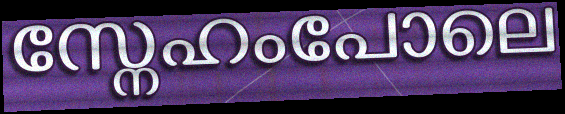
സ്നേഹംപോലെ